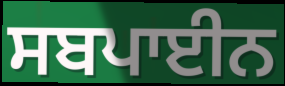
ਸਬਪਾਈਨ